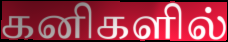
கனிகளில்